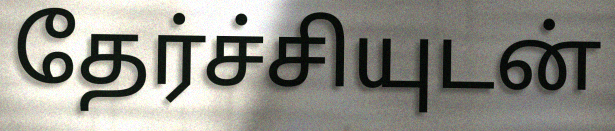
தேர்ச்சியுடன்